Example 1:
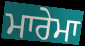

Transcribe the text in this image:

ਮਾਰੇਮਾ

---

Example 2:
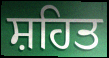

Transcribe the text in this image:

ਸ਼ਹਿਤ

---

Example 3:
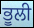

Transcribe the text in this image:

ਭੂਲੀ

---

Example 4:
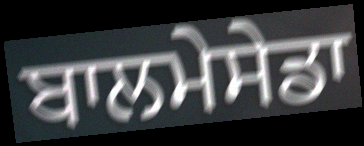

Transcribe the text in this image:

ਬਾਲਮੇਸੇਡਾ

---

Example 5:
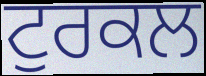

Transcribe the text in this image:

ਟੁਰਕਲ